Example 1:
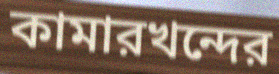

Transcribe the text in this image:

কামারখন্দের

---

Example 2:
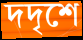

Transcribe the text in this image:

দদৃশে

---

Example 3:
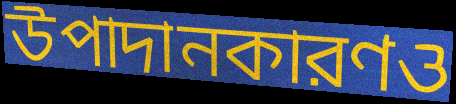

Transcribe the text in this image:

উপাদানকারণও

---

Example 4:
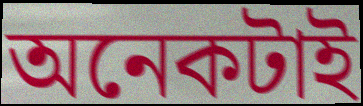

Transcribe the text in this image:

অনেকটাই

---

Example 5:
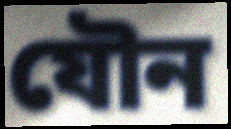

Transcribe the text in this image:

যৌন